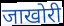
जाखोरी